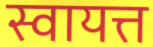
स्वायत्त